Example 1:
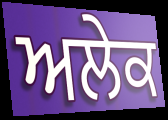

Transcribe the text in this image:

ਅਲੇਕ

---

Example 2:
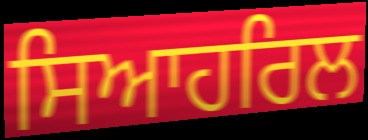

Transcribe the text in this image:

ਸਿਆਹਰਿਲ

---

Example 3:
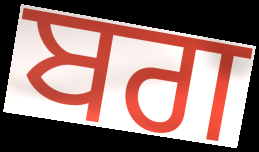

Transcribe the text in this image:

ਬਗ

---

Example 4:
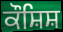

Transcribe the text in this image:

ਕੌਸ਼ਿਸ਼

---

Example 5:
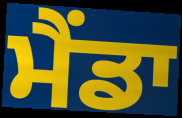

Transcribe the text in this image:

ਮੈਂਡਾ